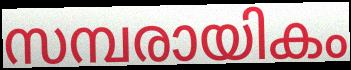
സമ്പരായികം